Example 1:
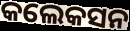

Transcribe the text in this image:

କଲେକସନ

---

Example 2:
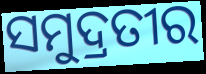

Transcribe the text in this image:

ସମୁଦ୍ରତୀର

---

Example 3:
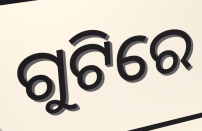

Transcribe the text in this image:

ଗୁଟିରେ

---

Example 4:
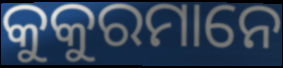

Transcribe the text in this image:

କୁକୁରମାନେ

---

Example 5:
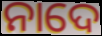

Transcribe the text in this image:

ନାଦେ